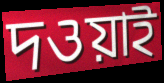
দওয়াই